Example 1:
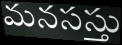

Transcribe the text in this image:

మనసస్తు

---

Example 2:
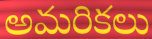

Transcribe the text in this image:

అమరికలు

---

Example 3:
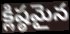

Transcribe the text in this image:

క్లిష్ఠమైన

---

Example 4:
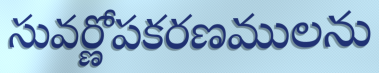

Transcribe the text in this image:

సువర్ణోపకరణములను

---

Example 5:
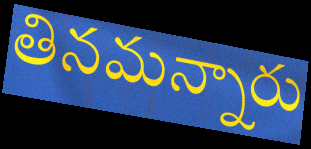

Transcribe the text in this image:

తినమన్నారు